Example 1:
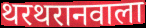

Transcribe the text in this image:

थरथरानवाला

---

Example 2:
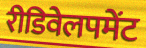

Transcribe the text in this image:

रीडिवेलपमेंट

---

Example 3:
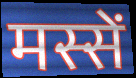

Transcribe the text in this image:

मस्सें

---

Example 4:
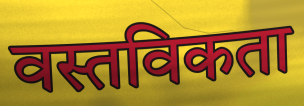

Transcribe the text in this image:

वस्तविकता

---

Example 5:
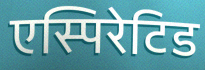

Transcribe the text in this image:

एस्पिरेटिड